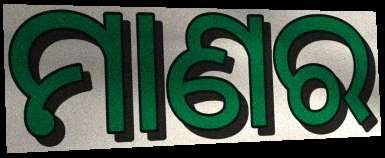
ମାଣର